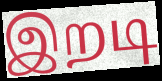
இறடி